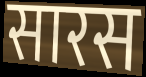
सारस